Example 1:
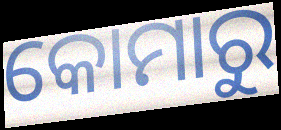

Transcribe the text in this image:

କୋମାରୁ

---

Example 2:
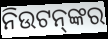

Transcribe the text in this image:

ନିଉଟନ୍‌ଙ୍କର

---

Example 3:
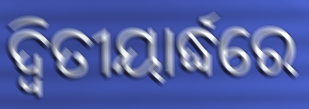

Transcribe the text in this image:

ଦ୍ବିତୀୟାର୍ଦ୍ଧରେ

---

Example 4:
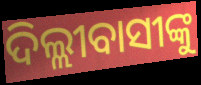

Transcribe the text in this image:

ଦିଲ୍ଲୀବାସୀଙ୍କୁ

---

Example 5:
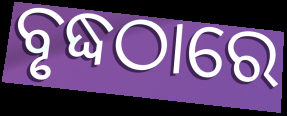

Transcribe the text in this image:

ବୃଦ୍ଧଠାରେ